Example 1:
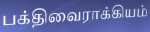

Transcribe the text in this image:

பக்திவைராக்கியம்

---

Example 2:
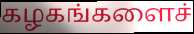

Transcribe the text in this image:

கழகங்களைச்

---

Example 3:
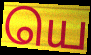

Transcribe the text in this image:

யெ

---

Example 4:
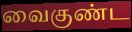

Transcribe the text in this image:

வைகுண்ட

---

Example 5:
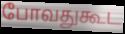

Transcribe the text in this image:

போவதுகூட